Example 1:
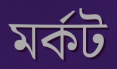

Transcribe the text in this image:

মর্কট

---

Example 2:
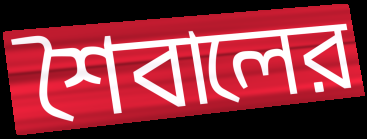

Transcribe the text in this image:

শৈবালের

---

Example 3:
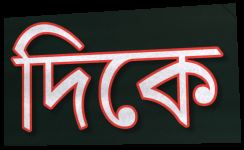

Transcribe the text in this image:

দিকে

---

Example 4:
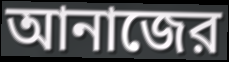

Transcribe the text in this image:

আনাজের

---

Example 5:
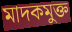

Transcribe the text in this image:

মাদকমুক্ত